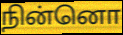
நின்னொ